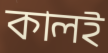
কালই